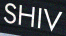
SHIV